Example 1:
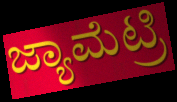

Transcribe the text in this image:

ಜ್ಯಾಮೆಟ್ರಿ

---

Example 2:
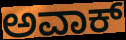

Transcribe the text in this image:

ಅವಾಕ್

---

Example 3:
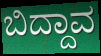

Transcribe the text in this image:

ಬಿದ್ದಾವ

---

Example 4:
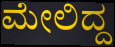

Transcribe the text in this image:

ಮೇಲಿದ್ದ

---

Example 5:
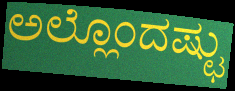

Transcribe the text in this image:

ಅಲ್ಲೊಂದಷ್ಟು